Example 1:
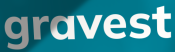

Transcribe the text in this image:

gravest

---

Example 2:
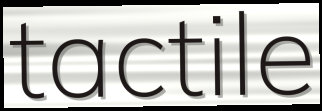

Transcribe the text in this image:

tactile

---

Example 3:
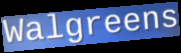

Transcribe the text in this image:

Walgreens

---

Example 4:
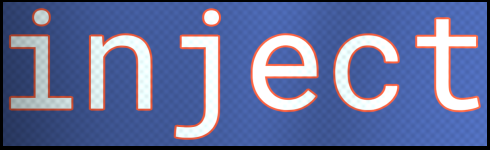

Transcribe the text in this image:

inject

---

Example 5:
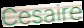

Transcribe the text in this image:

Cesaire